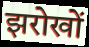
झरोखों